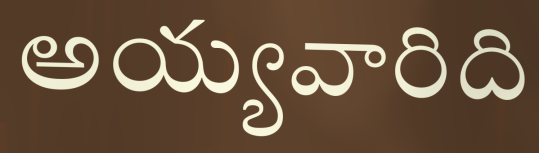
అయ్యవారిది